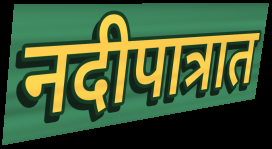
नदीपात्रात